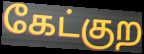
கேட்குற